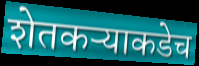
शेतकऱ्याकडेच